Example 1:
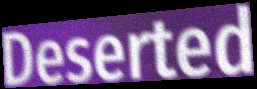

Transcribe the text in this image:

Deserted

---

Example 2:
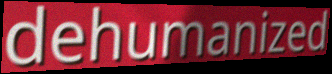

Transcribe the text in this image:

dehumanized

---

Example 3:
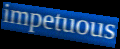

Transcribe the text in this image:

impetuous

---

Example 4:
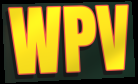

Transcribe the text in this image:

WPV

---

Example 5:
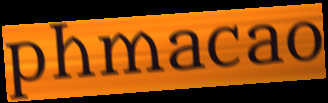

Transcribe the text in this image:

phmacao